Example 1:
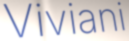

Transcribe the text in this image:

Viviani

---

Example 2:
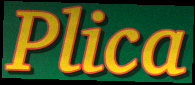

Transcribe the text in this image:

Plica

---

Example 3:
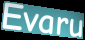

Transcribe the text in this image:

Evaru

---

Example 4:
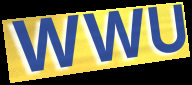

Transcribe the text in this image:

WWU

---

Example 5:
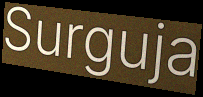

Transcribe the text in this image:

Surguja